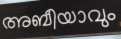
അബീയാവും